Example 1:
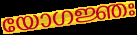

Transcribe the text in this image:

യോഗജ്ഞഃ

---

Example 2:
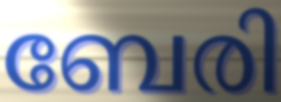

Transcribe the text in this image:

ബേരി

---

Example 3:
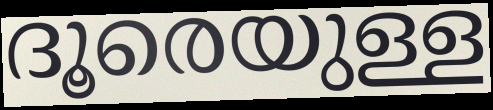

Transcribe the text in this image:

ദൂരെയുള്ള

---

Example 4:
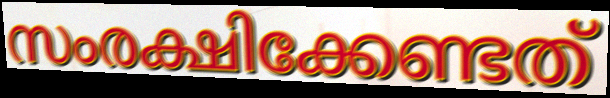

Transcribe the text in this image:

സംരക്ഷിക്കേണ്ടത്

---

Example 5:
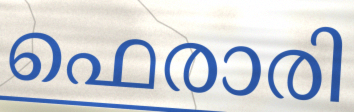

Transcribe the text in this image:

ഫെരാരി